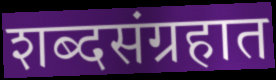
शब्दसंग्रहात